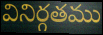
వినిర్గతము